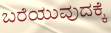
ಬರೆಯುವುದಕ್ಕೆ